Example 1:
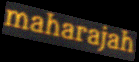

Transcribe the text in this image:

maharajah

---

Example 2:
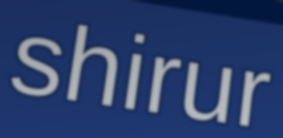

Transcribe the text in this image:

shirur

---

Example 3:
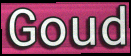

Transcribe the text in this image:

Goud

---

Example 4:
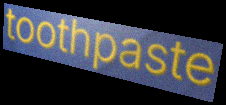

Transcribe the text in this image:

toothpaste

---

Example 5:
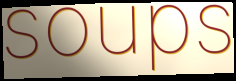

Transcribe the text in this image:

soups